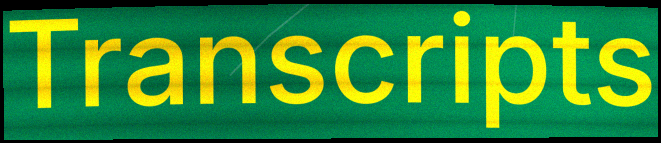
Transcripts